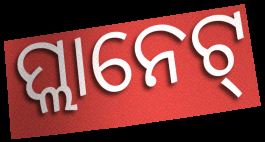
ପ୍ଲାନେଟ୍